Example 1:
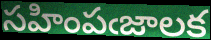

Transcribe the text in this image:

సహింపఁజాలక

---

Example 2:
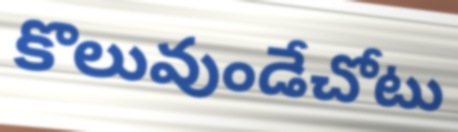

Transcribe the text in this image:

కొలువుండేచోటు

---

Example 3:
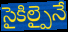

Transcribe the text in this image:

సైకిల్పైనే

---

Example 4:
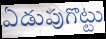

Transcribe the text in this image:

ఏడుపుగొట్టు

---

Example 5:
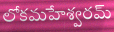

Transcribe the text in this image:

లోకమహేశ్వరమ్